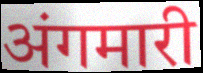
अंगमारी